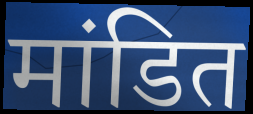
मांडित